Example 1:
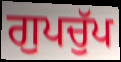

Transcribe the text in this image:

ਗੁਪਚੁੱਪ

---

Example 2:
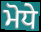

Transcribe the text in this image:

ਮੋਧੇ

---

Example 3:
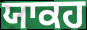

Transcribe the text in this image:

ਯਾਕਹ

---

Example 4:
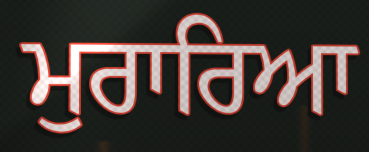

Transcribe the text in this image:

ਮੁਰਾਰਿਆ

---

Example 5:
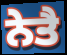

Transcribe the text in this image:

ਨੇਤੈ